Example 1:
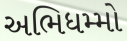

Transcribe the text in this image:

અભિધમ્મો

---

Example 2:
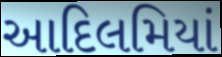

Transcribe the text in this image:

આદિલમિયાં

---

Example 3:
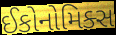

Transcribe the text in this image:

ઈકોનોમિક્સ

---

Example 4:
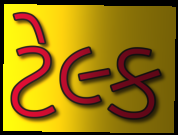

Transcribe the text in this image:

ટેલ્ક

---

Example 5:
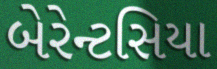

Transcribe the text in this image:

બેરેન્ટસિયા